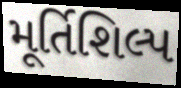
મૂર્તિશિલ્પ